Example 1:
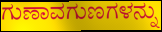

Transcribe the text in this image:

ಗುಣಾವಗುಣಗಳನ್ನು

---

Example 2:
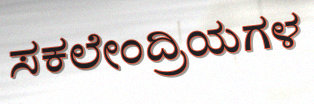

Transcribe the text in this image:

ಸಕಲೇಂದ್ರಿಯಗಳ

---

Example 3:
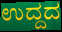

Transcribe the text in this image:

ಉದ್ದದ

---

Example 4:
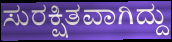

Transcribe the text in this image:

ಸುರಕ್ಷಿತವಾಗಿದ್ದು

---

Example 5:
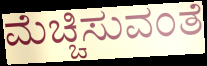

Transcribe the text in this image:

ಮೆಚ್ಚಿಸುವಂತೆ